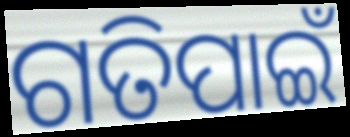
ଗତିପାଇଁ